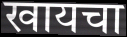
खायचा